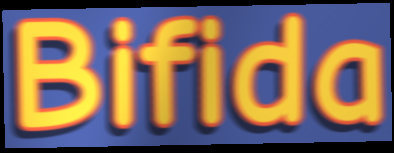
Bifida